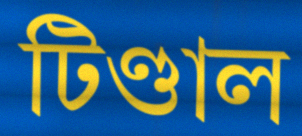
টিণ্ডাল